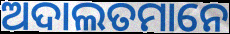
ଅଦାଲତମାନେ